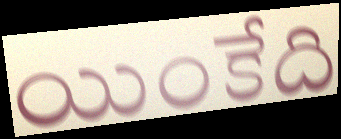
యింకేది